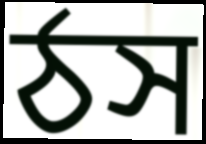
ঠস